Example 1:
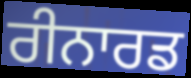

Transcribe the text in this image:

ਰੀਨਾਰਡ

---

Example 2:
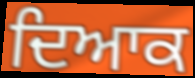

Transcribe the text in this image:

ਦਿਆਕ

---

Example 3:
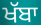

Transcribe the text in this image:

ਖੱਬਾ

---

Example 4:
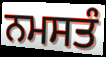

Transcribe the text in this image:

ਨਮਸਤੰ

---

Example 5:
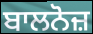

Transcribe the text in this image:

ਬਾਲਨੋਜ਼